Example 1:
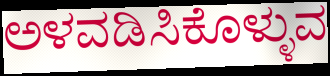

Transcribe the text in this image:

ಅಳವಡಿಸಿಕೊಳ್ಳುವ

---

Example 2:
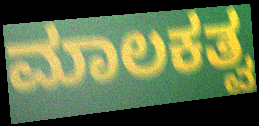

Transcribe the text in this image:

ಮಾಲಕತ್ವ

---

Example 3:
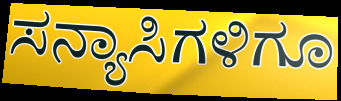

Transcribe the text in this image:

ಸನ್ಯಾಸಿಗಳಿಗೂ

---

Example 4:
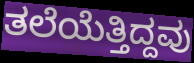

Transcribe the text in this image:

ತಲೆಯೆತ್ತಿದ್ದವು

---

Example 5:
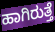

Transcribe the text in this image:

ಹಾಗಿರುತ್ತೆ